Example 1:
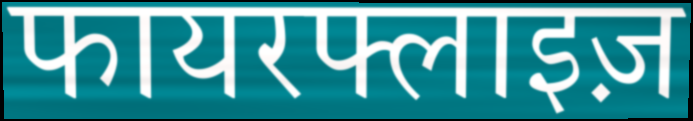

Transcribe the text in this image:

फायरफ्लाइज़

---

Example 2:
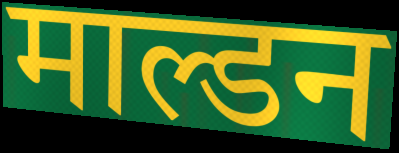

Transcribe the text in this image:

माल्डन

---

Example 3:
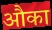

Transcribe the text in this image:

औका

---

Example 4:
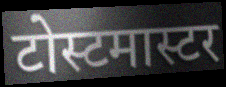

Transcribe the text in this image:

टोस्टमास्टर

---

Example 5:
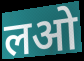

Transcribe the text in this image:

लओ